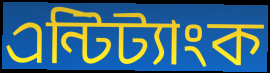
এন্টিট্যাংক